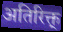
अतिरिक्त्